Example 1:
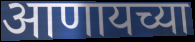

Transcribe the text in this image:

आणायच्या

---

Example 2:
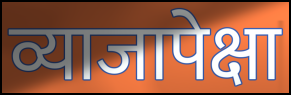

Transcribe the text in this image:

व्याजापेक्षा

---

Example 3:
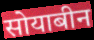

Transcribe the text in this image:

सोयाबीन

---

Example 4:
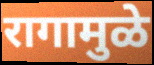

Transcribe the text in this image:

रागामुळे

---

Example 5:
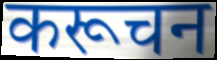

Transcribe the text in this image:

करूचन